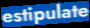
estipulate